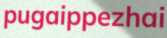
pugaippezhai